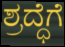
ಶ್ರದ್ಧೆಗೆ